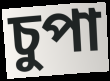
চুপা